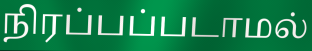
நிரப்பப்படாமல்